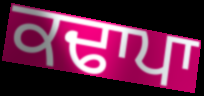
ਕਢਾਪਾ